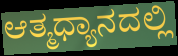
ಆತ್ಮಧ್ಯಾನದಲ್ಲಿ